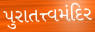
પુરાતત્ત્વમંદિર